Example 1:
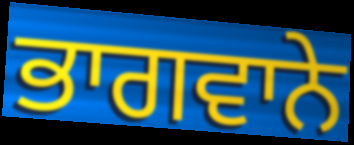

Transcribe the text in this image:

ਭਾਗਵਾਨੇ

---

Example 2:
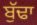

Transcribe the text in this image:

ਬੁੱਢਾ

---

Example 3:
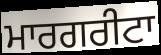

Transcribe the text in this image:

ਮਾਰਗਰੀਟਾ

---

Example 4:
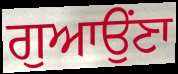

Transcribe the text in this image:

ਗੁਆਉਂਣਾ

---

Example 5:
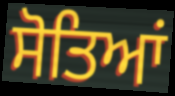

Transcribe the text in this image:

ਸੋਤਿਆਂ